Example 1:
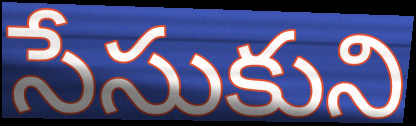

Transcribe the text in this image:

సేసుకుని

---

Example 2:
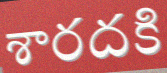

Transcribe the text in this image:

శారదకి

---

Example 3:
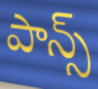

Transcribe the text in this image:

పాన్స్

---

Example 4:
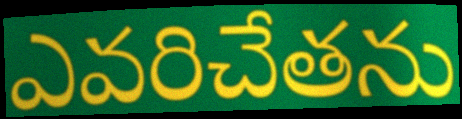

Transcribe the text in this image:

ఎవరిచేతను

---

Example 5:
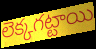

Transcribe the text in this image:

లెక్కగట్టాయి